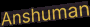
Anshuman